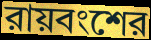
রায়বংশের